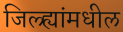
जिल्ह्यांमधील